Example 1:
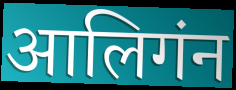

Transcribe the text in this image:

आलिगंन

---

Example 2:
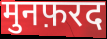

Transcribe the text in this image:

मुनफ़रद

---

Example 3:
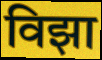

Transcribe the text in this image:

विझा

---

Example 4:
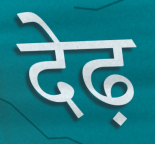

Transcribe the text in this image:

देढ़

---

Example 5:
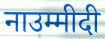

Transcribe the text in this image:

नाउम्मीदी